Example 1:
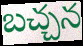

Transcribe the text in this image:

బచ్చన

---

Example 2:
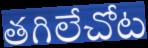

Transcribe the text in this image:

తగిలేచోట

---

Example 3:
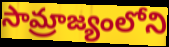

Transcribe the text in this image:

సామ్రాజ్యంలోని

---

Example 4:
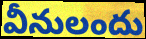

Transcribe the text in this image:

వీనులందు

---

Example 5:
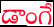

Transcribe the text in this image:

డాంగే